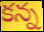
కన్న